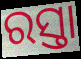
ରସ୍ତା